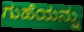
ಗುಹೆಯನ್ನು